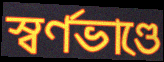
স্বর্ণভাণ্ডে